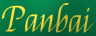
Panbai